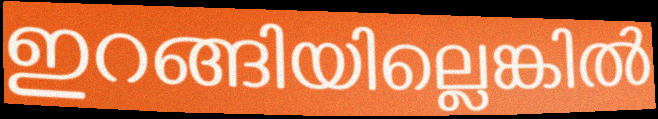
ഇറങ്ങിയില്ലെങ്കിൽ